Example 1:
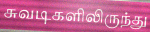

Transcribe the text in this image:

சுவடிகளிலிருந்து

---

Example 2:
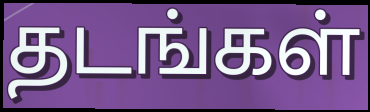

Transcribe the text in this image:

தடங்கள்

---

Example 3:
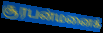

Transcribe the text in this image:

சூரபன்மனைக்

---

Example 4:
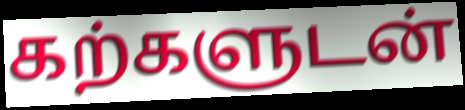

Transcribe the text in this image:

கற்களுடன்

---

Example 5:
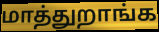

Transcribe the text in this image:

மாத்துறாங்க